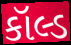
કૉલ્ડ